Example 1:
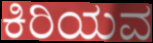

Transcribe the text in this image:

ಕಿರಿಯವ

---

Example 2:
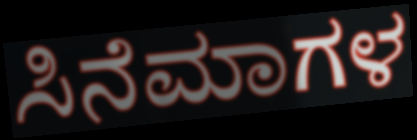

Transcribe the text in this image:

ಸಿನೆಮಾಗಳ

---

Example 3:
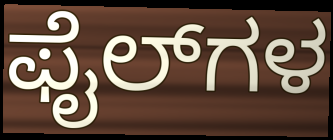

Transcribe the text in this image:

ಫೈಲ್‌ಗಳ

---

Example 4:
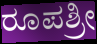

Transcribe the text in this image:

ರೂಪಶ್ರೀ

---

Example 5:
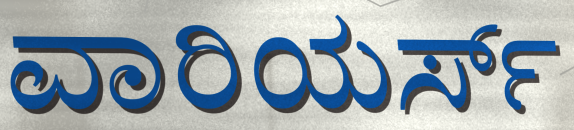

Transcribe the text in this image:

ವಾರಿಯರ್ಸ್